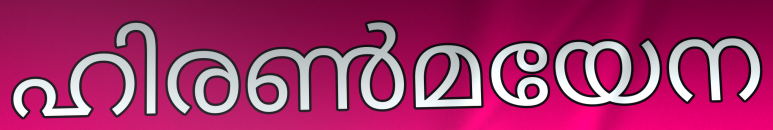
ഹിരൺമയേന